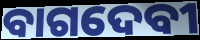
ବାଗଦେବୀ